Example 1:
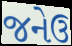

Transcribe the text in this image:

જનેઉ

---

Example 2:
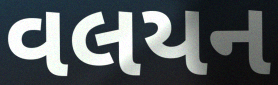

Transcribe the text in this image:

વલયન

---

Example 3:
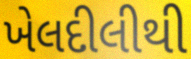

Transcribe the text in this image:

ખેલદીલીથી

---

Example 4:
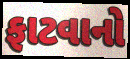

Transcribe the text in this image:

ફાટવાનો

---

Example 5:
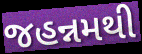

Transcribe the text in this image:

જહન્નમથી